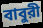
বাবুরী